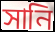
সানি